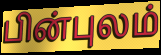
பின்புலம்